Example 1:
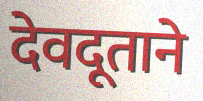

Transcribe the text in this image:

देवदूताने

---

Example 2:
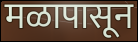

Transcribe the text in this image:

मळापासून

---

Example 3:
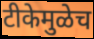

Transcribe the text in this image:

टीकेमुळेच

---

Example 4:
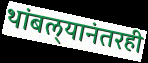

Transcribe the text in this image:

थांबल्यानंतरही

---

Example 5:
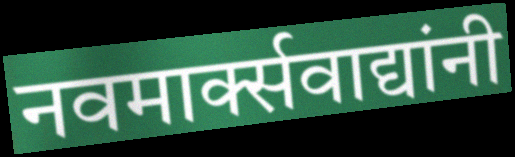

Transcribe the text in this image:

नवमार्क्सवाद्यांनी